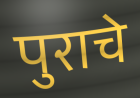
पुराचे